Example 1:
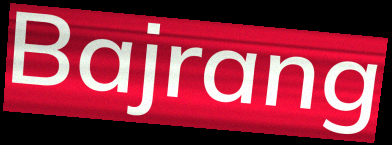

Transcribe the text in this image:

Bajrang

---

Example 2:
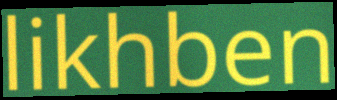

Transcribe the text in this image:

likhben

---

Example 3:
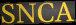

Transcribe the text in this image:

SNCA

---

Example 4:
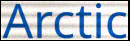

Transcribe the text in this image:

Arctic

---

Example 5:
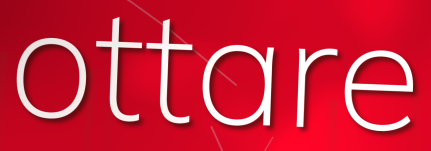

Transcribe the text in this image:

ottare